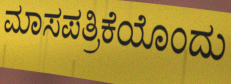
ಮಾಸಪತ್ರಿಕೆಯೊಂದು